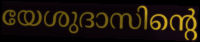
യേശുദാസിന്റെ